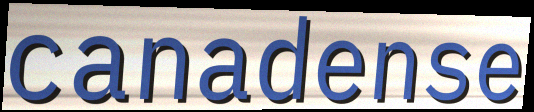
canadense